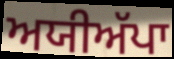
ਅਯੀਅੱਪਾ